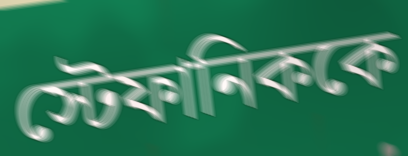
স্টেফানিককে